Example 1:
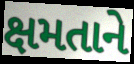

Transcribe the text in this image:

ક્ષમતાને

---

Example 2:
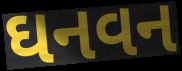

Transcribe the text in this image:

ઘનવન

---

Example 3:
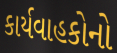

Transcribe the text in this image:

કાર્યવાહકોનો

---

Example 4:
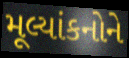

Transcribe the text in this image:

મૂલ્યાંકનોને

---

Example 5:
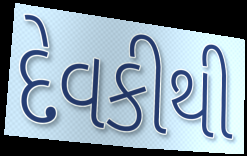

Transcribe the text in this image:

દેવકીથી